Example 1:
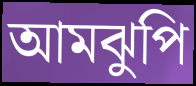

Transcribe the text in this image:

আমঝুপি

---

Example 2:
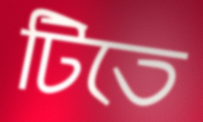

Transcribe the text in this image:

টিতে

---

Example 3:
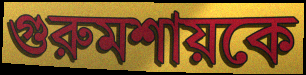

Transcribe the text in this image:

গুরুমশায়কে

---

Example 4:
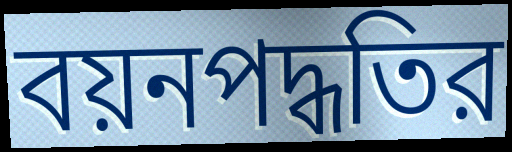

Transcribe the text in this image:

বয়নপদ্ধতির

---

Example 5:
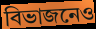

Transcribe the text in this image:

বিভাজনেও